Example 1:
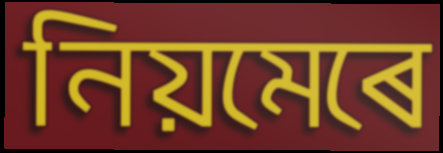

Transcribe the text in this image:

নিয়মেৰে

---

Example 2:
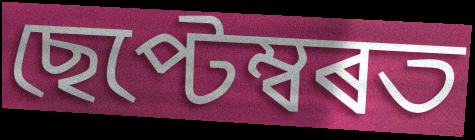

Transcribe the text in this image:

ছেপ্টেম্বৰত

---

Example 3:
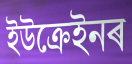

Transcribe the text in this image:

ইউক্ৰেইনৰ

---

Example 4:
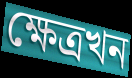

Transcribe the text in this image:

ক্ষেত্ৰখন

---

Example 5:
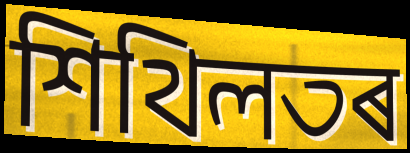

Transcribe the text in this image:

শিথিলতৰ